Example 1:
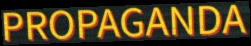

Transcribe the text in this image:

PROPAGANDA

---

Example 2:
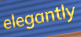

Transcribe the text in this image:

elegantly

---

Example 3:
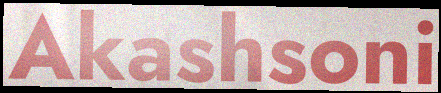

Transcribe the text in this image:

Akashsoni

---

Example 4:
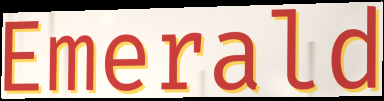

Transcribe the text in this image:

Emerald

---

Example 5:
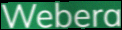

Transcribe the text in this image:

Webera